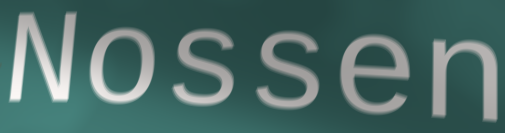
Nossen